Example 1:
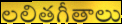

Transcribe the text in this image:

లలితగీతాలు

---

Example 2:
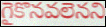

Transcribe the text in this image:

గైకొనవలెనని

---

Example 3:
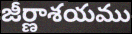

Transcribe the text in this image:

జీర్ణాశయము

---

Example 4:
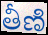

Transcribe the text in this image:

తీణి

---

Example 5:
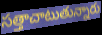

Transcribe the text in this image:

సత్తాచాటుతున్నారు